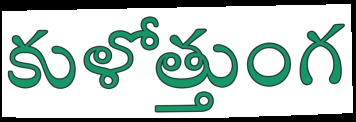
కుళోత్తుంగ